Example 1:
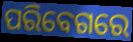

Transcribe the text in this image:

ପରିବେଗରେ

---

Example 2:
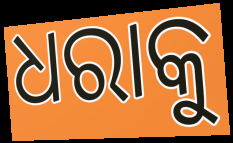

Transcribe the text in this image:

ଧରାକୁ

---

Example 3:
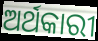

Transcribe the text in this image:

ଅର୍ଥକାରୀ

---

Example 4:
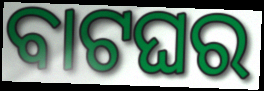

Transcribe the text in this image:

ବାଟଘର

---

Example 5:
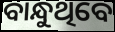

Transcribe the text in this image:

ବାନ୍ଧୁଥିବେ